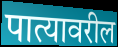
पात्यावरील